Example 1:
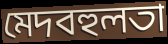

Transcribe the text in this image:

মেদবহুলতা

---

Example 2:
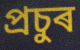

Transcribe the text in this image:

প্ৰচুৰ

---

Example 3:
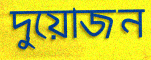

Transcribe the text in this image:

দুয়োজন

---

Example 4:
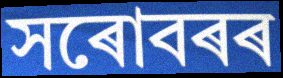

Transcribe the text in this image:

সৰোবৰৰ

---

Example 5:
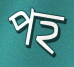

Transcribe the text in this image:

পহ